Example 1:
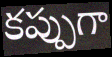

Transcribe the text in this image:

కప్పుగా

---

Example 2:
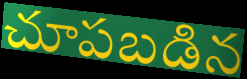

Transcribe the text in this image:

చూపబడిన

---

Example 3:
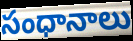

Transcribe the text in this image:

సంధానాలు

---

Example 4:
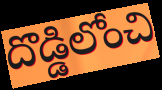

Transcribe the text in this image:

దొడ్డిలోంచి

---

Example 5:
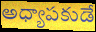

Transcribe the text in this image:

అధ్యాపకుడే